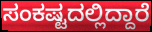
ಸಂಕಷ್ಟದಲ್ಲಿದ್ದಾರೆ